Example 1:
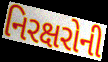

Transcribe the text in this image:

નિરક્ષરોની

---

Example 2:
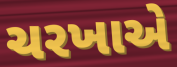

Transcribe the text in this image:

ચરખાએ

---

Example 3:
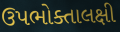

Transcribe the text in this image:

ઉપભોક્તાલક્ષી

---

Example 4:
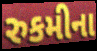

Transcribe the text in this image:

રુકમીના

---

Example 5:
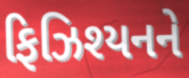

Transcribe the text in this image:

ફિઝિશ્યનને